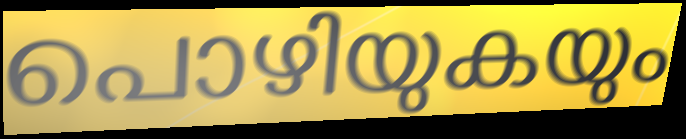
പൊഴിയുകയും